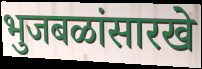
भुजबळांसारखे